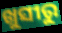
ଖୁସୀରୁ